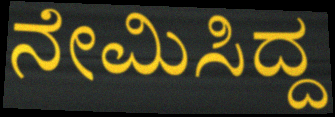
ನೇಮಿಸಿದ್ದ